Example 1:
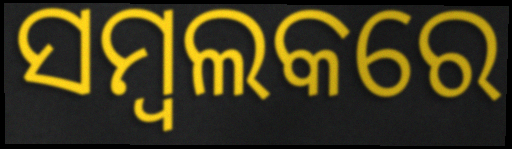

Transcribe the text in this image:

ସମ୍ବଲକରେ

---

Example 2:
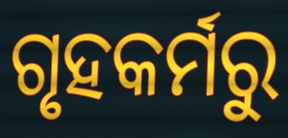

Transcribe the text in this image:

ଗୃହକର୍ମରୁ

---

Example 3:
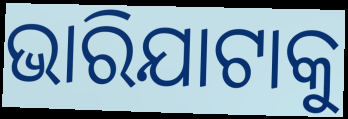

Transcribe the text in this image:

ଭାରିଯାଟାକୁ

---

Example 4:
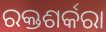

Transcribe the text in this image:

ରକ୍ତଶର୍କରା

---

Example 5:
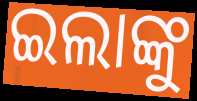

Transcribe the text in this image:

ଇଲାଙ୍କୁ